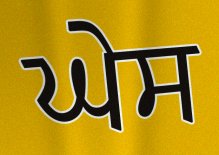
ਘੇਸ